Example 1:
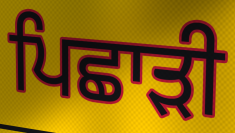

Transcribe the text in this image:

ਪਿਛਾੜੀ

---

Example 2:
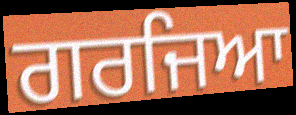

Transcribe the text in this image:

ਗਰਜਿਆ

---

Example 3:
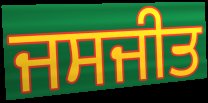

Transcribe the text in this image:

ਜਸਜੀਤ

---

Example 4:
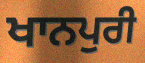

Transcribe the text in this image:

ਖਾਨਪੁਰੀ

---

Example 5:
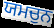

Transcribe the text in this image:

ਯਮਚੁਨ